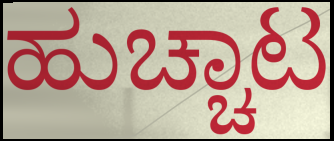
ಹುಚ್ಚಾಟ